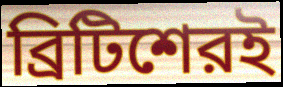
ব্রিটিশেরই